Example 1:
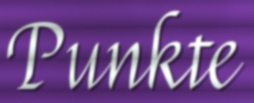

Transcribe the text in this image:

Punkte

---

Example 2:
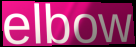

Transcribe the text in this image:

elbow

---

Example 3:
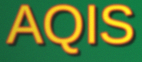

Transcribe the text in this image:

AQIS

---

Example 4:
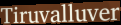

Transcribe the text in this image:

Tiruvalluver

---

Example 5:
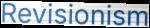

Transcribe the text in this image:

Revisionism